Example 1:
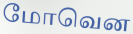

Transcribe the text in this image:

மோவென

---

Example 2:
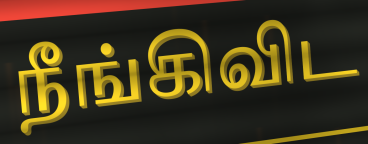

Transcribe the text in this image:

நீங்கிவிட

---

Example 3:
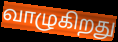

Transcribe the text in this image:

வாழுகிறது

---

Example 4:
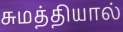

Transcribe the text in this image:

சுமத்தியால்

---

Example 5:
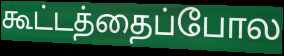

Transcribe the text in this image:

கூட்டத்தைப்போல